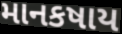
માનકષાય